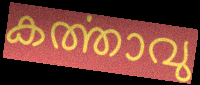
കൎത്താവു